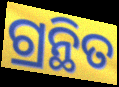
ଗ୍ରନ୍ଥିତ